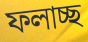
ফলাচ্ছ